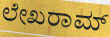
ಲೇಖರಾಮ್